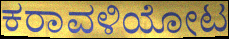
ಕರಾವಳಿಯೋಟ